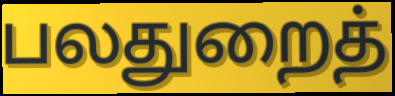
பலதுறைத்